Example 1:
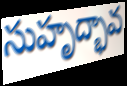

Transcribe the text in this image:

సుహృద్భావ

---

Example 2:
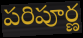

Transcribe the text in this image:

పరిపూర్ణ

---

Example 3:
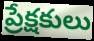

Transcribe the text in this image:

ప్రేక్షకులు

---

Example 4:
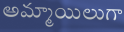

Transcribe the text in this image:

అమ్మాయిలుగా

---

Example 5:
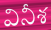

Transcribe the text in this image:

వినీశ